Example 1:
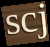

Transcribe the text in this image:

scj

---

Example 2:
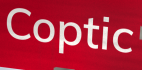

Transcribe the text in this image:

Coptic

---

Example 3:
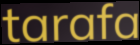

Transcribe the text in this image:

tarafa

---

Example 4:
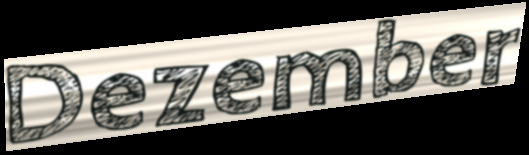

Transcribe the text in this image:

Dezember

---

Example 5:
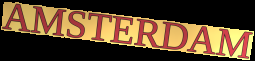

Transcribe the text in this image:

AMSTERDAM